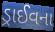
ડ્રાઈવના